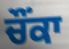
ਚੌੰਕਾ